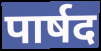
पार्षद